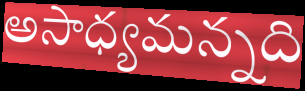
అసాధ్యమన్నది